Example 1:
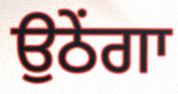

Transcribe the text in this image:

ਉਠੇਂਗਾ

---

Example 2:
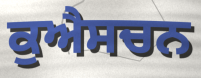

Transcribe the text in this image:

ਕੁਐਸਚਨ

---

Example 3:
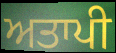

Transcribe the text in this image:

ਅਤਾਪੀ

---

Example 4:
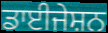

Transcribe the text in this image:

ਡਾਈਜੇਸ਼ਨ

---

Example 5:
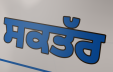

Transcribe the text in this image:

ਸਕਤੱਰ